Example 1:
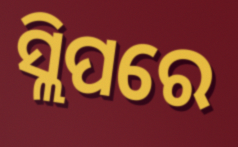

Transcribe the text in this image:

ସ୍ଲିପରେ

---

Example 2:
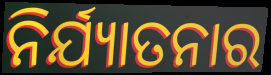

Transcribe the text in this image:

ନିର୍ଯ୍ୟାତନାର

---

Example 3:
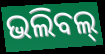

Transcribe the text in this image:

ଭଲିବଲ୍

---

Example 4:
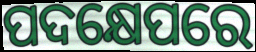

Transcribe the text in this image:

ପଦକ୍ଷେପରେ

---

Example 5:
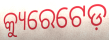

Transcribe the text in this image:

କ୍ୟୁରେଟେଡ଼